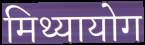
मिथ्यायोग